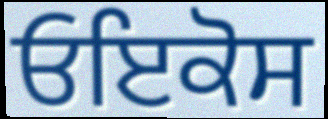
ਓਇਕੋਸ